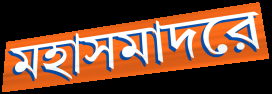
মহাসমাদরে